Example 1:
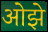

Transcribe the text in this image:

ओझे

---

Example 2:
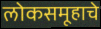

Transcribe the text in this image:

लोकसमूहाचे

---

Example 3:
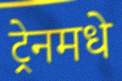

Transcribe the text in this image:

ट्रेनमधे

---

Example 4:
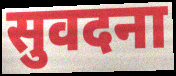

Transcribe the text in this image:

सुवदना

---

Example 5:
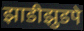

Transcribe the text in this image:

झाडीझुडपे